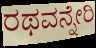
ರಥವನ್ನೇರಿ